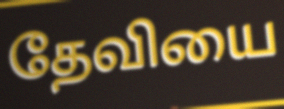
தேவியை